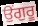
ਉਂਗੁਰੂ